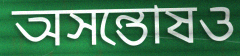
অসন্তোষও